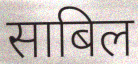
साबिल